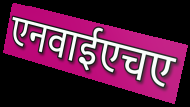
एनवाईएचए